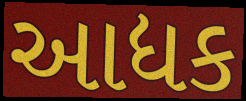
આદ્યક